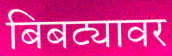
बिबट्यावर